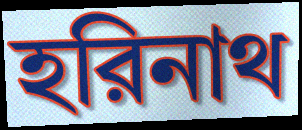
হরিনাথ